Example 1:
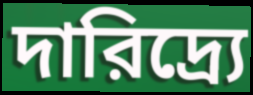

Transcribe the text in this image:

দারিদ্র্যে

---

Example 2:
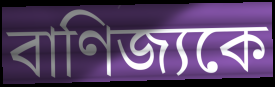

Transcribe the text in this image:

বাণিজ্যকে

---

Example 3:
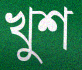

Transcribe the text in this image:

খুশ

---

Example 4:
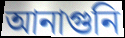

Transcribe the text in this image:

আনাগুনি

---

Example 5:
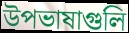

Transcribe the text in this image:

উপভাষাগুলি